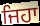
ਜਿਹਾ